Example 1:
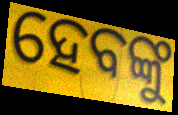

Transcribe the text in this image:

ହେବଙ୍କୁ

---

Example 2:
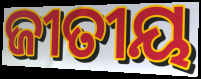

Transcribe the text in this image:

ଜୀତୀୟ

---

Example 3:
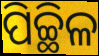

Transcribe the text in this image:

ପିଚ୍ଛିଳ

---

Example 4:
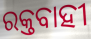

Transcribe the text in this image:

ରକ୍ତବାହୀ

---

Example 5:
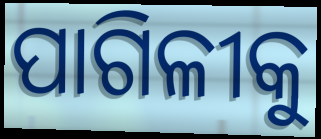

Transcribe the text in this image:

ପାଗିଳୀକୁ